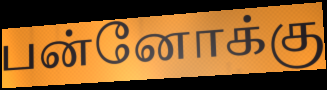
பன்னோக்கு